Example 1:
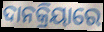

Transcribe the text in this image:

ଦାନକ୍ରିୟାରେ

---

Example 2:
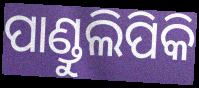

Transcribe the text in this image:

ପାଣ୍ଡୁଲିପିକି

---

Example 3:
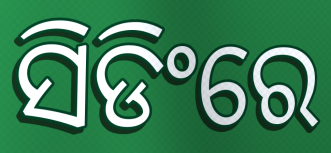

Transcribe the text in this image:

ସିଡିଂରେ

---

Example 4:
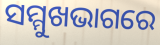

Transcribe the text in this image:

ସମ୍ମୁଖଭାଗରେ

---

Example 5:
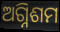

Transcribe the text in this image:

ଅଗ୍ନିଶମ